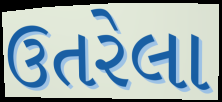
ઉતરેલા